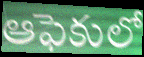
ఆఫెకులో